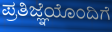
ಪ್ರತಿಜ್ಞೆಯೊಂದಿಗೆ